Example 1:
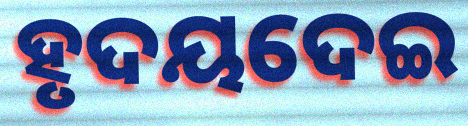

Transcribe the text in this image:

ହୃଦୟଦେଇ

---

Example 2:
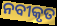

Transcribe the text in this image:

ନବୀକୃତ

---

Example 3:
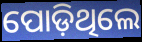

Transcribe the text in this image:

ପୋଡ଼ିଥିଲେ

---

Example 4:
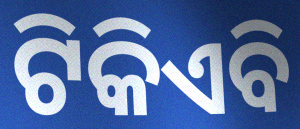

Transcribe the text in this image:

ଟିକିଏବି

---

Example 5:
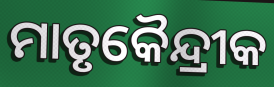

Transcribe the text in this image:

ମାତୃକୈନ୍ଦ୍ରୀକ